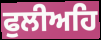
ਫੁਲੀਅਹਿ